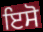
ਇਸੋ